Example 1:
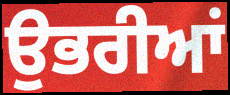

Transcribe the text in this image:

ਉਭਰੀਆਂ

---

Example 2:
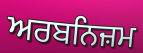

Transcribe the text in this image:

ਅਰਬਨਿਜ਼ਮ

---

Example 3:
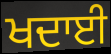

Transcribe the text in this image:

ਖਦਾਈ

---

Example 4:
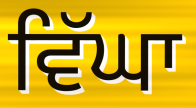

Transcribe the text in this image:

ਵਿੱਘਾ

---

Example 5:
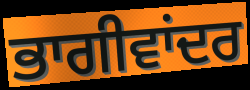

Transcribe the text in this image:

ਭਾਗੀਵਾਂਦਰ